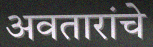
अवतारांचे